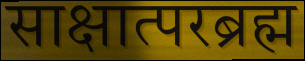
साक्षात्परब्रह्म